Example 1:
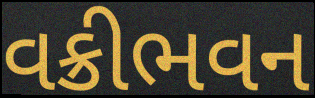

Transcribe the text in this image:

વક્રીભવન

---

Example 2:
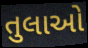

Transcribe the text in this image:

તુલાઓ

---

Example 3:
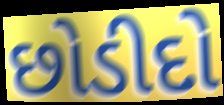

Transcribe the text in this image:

છોડીદો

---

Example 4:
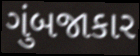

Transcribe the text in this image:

ગુંબજાકાર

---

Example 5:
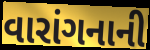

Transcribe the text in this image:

વારાંગનાની